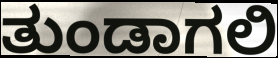
ತುಂಡಾಗಲಿ